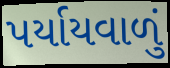
પર્યાયવાળું